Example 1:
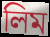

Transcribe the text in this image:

লিম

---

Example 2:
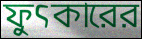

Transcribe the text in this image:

ফুৎকারের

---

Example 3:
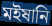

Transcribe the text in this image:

মইষানি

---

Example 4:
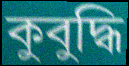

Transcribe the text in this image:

কুবুদ্ধি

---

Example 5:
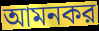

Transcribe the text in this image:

আমনকর